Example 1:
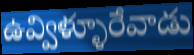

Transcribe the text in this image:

ఉవ్విళ్ళూరేవాడు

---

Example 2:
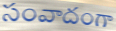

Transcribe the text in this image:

సంవాదంగా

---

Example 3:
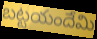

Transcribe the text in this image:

బట్టయందేమి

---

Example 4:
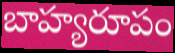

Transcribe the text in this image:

బాహ్యరూపం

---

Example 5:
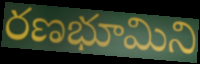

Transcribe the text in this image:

రణభూమిని